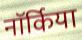
नॉर्किया